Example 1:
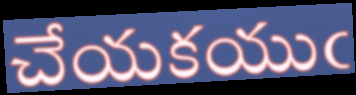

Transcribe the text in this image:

చేయకయుఁ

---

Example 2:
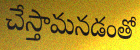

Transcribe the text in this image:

చేస్తామనడంతో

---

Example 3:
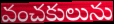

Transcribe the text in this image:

వంచకులును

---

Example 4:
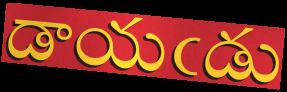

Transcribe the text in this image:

డాయఁడు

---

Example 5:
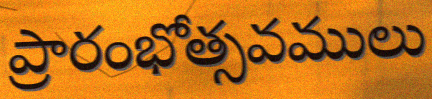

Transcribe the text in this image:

ప్రారంభోత్సవములు